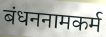
बंधननामकर्म